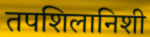
तपशिलानिशी